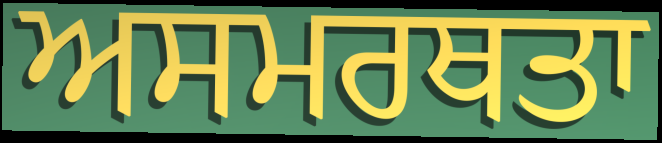
ਅਸਮਰਥਤਾ